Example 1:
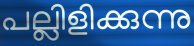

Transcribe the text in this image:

പല്ലിളിക്കുന്നു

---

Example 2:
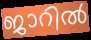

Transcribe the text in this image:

ജാറിൽ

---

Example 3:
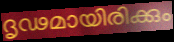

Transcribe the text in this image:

ദൃഢമായിരിക്കും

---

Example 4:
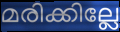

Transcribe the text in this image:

മരിക്കില്ലേ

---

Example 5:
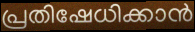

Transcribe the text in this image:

പ്രതിഷേധിക്കാൻ